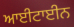
ਆਈਟਾਈਨ